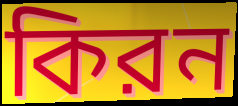
কিরন